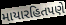
માયારહિતપણે